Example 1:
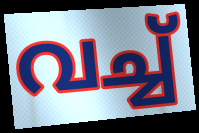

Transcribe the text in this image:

വച്ച്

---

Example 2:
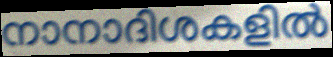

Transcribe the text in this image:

നാനാദിശകളിൽ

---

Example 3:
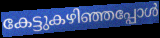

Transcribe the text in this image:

കേട്ടുകഴിഞ്ഞപ്പോൾ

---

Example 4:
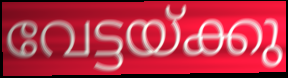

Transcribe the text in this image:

വേട്ടയ്ക്കു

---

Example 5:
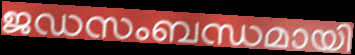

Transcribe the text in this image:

ജഡസംബന്ധമായി